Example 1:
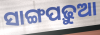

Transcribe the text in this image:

ସାଙ୍ଗପଢ଼ୁଆ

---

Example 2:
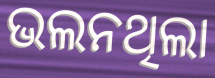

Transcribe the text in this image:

ଭଲନଥିଲା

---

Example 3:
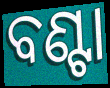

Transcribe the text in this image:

ବଣ୍ଟା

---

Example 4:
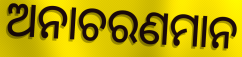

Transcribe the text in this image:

ଅନାଚରଣମାନ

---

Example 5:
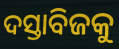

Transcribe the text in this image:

ଦସ୍ତାବିଜକୁ